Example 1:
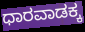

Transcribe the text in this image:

ಧಾರವಾಡಕ್ಕ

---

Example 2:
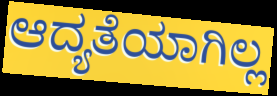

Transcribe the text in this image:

ಆದ್ಯತೆಯಾಗಿಲ್ಲ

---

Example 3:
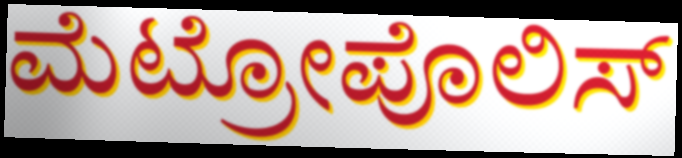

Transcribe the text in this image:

ಮೆಟ್ರೋಪೊಲಿಸ್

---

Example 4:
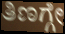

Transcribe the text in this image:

ತಿಣಗ್ಗೇ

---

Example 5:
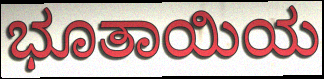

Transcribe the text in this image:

ಭೂತಾಯಿಯ